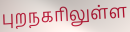
புறநகரிலுள்ள